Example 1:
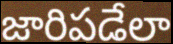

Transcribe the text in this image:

జారిపడేలా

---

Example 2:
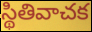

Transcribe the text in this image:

స్థితివాచక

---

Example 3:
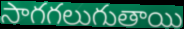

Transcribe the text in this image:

సాగగలుగుతాయి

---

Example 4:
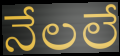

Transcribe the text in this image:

నేలలే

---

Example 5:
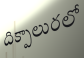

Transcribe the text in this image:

దిక్పాలురలో